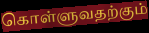
கொள்ளுவதற்கும்